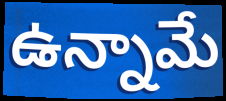
ఉన్నామే